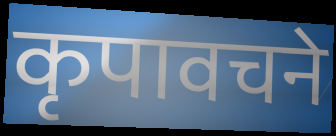
कृपावचने